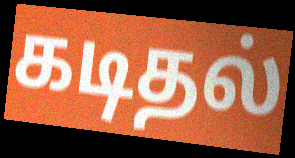
கடிதல்